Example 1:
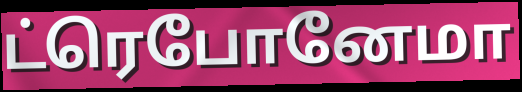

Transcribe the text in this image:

ட்ரெபோனேமா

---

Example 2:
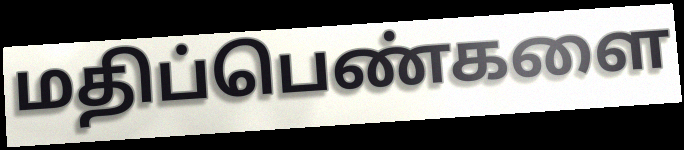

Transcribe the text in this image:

மதிப்பெண்களை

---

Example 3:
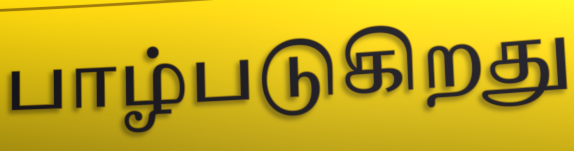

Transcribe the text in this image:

பாழ்படுகிறது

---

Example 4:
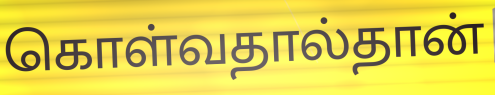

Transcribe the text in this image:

கொள்வதால்தான்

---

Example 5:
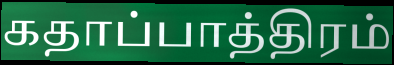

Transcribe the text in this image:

கதாப்பாத்திரம்